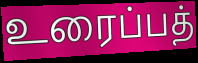
உரைப்பத்